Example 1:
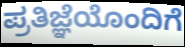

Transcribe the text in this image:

ಪ್ರತಿಜ್ಞೆಯೊಂದಿಗೆ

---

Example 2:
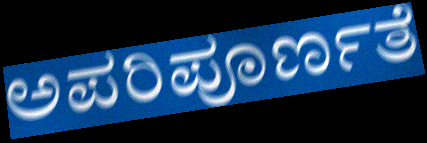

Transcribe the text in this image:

ಅಪರಿಪೂರ್ಣತೆ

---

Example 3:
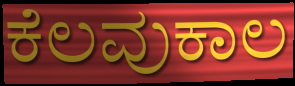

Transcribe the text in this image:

ಕೆಲವುಕಾಲ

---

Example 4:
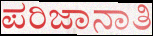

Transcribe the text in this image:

ಪರಿಜಾನಾತಿ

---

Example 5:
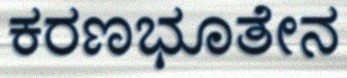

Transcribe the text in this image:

ಕರಣಭೂತೇನ